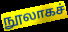
நூலாகச்